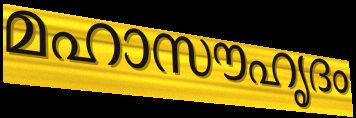
മഹാസൗഹൃദം